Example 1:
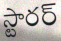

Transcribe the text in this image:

స్టారర్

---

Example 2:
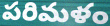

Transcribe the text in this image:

పరిమళం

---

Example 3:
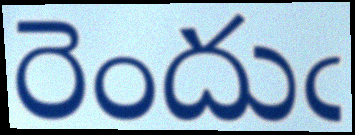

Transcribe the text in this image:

రెందుఁ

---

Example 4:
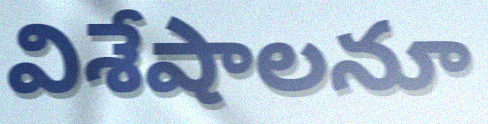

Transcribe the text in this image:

విశేషాలనూ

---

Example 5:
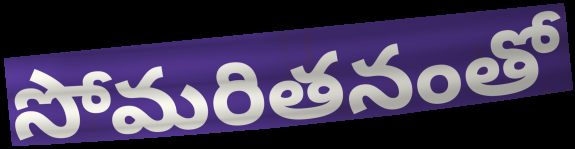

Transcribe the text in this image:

సోమరితనంతో